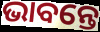
ଭାବନ୍ତେ